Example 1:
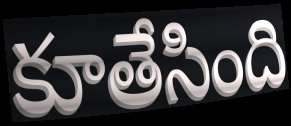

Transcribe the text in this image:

కూతేసింది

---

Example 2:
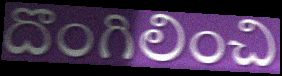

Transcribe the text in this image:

దొంగిలించి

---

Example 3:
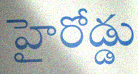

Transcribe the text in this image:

హైరోడ్డు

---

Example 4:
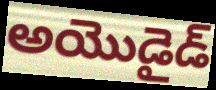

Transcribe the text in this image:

అయొడైడ్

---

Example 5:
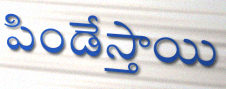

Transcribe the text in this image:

పిండేస్తాయి